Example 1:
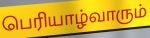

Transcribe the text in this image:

பெரியாழ்வாரும்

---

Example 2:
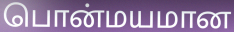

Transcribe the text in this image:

பொன்மயமான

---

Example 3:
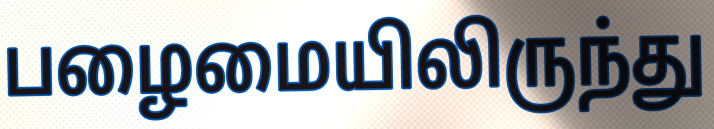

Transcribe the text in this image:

பழைமையிலிருந்து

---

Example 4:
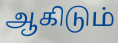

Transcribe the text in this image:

ஆகிடும்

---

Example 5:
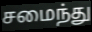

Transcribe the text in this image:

சமைந்து